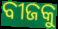
ବୀଜକୁ